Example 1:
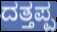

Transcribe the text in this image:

ದತ್ತಪ್ಪ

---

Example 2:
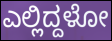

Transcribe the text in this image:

ಎಲ್ಲಿದ್ದಳೋ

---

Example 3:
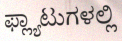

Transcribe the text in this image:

ಫ್ಲ್ಯಾಟುಗಳಲ್ಲಿ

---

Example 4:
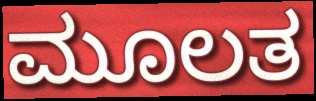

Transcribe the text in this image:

ಮೂಲತ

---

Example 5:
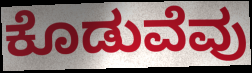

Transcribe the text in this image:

ಕೊಡುವೆವು